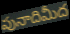
పునాదిమీద